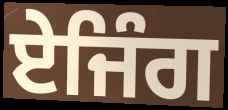
ਏਜਿੰਗ